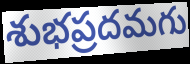
శుభప్రదమగు